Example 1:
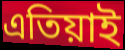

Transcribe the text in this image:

এতিয়াই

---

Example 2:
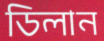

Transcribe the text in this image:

ডিলান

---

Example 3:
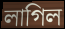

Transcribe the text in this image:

লাগিল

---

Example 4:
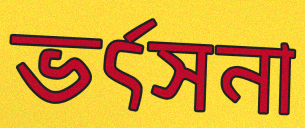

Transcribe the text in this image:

ভৰ্ৎসনা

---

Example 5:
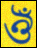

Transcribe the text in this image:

ঔঁ